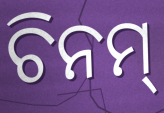
ଚିନମ୍